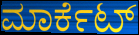
ಮಾರ್ಕೆಟ್